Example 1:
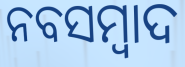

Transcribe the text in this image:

ନବସମ୍ବାଦ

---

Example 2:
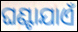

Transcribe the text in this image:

ଘଣ୍ଟାଯାଏଁ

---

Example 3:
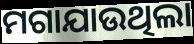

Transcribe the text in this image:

ମଗାଯାଉଥିଲା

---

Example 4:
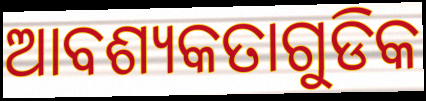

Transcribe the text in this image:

ଆବଶ୍ୟକତାଗୁଡିକ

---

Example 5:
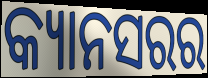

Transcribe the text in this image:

କ୍ୟାନସରର